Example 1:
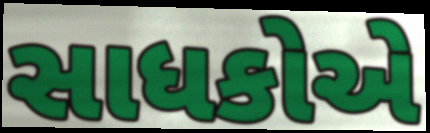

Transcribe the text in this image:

સાધકોએ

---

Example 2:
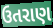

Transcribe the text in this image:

ઉતરાણ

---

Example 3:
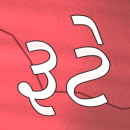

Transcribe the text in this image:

રૂટે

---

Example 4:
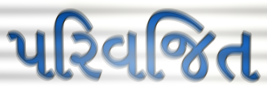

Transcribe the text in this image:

પરિવજિત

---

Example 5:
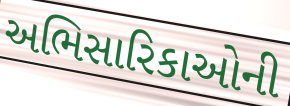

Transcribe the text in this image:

અભિસારિકાઓની